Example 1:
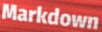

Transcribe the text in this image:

Markdown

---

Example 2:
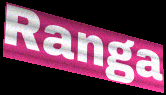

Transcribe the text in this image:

Ranga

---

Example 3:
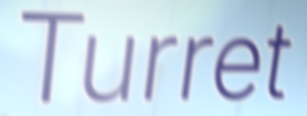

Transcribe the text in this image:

Turret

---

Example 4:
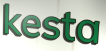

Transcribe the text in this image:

kesta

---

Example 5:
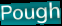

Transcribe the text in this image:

Pough